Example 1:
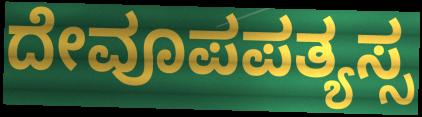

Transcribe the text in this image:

ದೇವೂಪಪತ್ಯಸ್ಸ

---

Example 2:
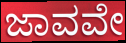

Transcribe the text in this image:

ಜಾವವೇ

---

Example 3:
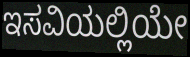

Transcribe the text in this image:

ಇಸವಿಯಲ್ಲಿಯೇ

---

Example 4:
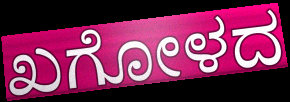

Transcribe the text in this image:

ಖಗೋಳದ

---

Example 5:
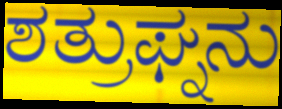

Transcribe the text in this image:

ಶತ್ರುಘ್ನನು